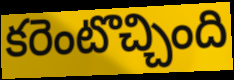
కరెంటొచ్చింది